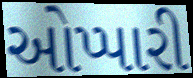
ઓપ્પારી